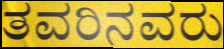
ತವರಿನವರು